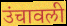
उंचावली